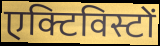
एक्टिविस्टों